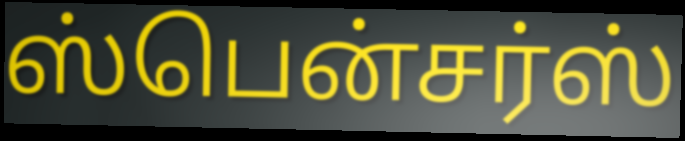
ஸ்பென்சர்ஸ்